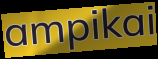
ampikai